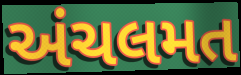
અંચલમત